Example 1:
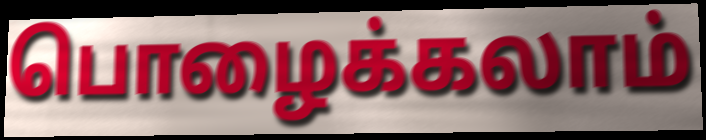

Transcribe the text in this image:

பொழைக்கலாம்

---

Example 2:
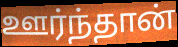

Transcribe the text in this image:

ஊர்ந்தான்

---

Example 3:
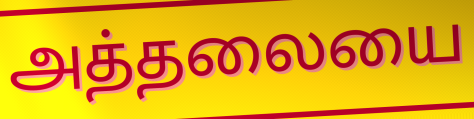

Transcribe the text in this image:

அத்தலையை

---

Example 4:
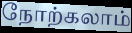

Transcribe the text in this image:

நோற்கலாம்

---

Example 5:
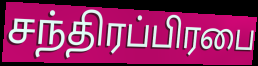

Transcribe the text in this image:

சந்திரப்பிரபை